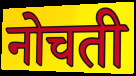
नोचती